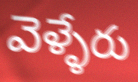
వెళ్ళేరు